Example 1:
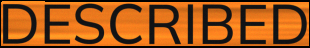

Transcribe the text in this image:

DESCRIBED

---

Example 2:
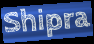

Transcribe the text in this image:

Shipra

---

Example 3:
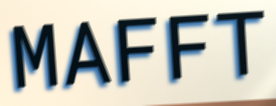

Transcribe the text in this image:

MAFFT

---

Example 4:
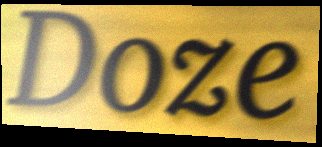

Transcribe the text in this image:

Doze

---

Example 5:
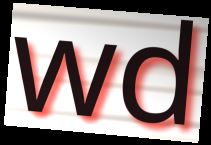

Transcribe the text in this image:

wd